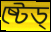
ষ্টেড্